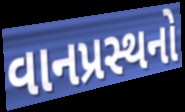
વાનપ્રસ્થનો